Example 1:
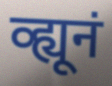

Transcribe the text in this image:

व्ह्यूनं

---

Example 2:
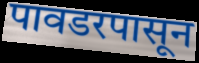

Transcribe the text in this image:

पावडरपासून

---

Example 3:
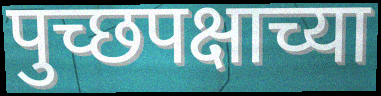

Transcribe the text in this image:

पुच्छपक्षाच्या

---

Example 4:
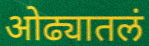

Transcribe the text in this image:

ओढ्यातलं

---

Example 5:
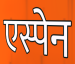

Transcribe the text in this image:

एस्पेन